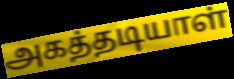
அகத்தடியாள்